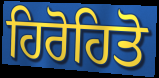
ਹਿਰੋਹਿਤੋ